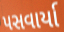
પસવાર્યા